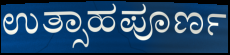
ಉತ್ಸಾಹಪೂರ್ಣ